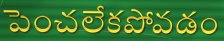
పెంచలేకపోవడం